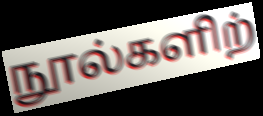
நூல்களிற்